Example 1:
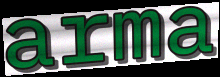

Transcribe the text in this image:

arma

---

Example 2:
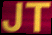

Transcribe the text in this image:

JT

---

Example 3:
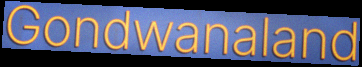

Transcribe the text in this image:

Gondwanaland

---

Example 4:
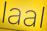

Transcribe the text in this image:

laal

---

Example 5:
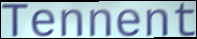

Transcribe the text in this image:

Tennent